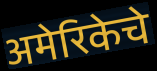
अमेरिकेचे